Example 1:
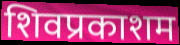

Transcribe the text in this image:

शिवप्रकाशम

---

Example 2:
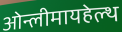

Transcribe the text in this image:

ओन्लीमायहेल्थ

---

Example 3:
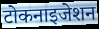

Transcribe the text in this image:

टोकनाइजेशन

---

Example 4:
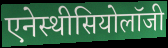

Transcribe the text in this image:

एनेस्थीसियोलॉजी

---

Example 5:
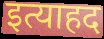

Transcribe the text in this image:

इत्याहद